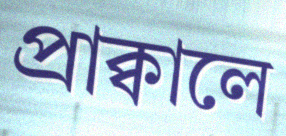
প্রাক্বালে